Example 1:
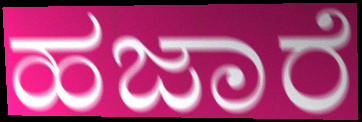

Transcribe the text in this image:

ಹಜಾರೆ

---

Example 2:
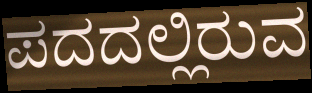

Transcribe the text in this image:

ಪದದಲ್ಲಿರುವ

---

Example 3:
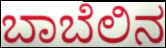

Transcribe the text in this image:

ಬಾಬೆಲಿನ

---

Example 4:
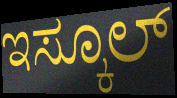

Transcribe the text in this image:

ಇಸ್ಕೂಲ್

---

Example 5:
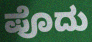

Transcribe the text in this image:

ಪೊದು